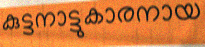
കുട്ടനാട്ടുകാരനായ